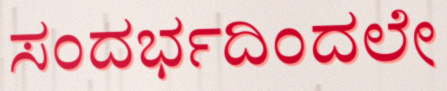
ಸಂದರ್ಭದಿಂದಲೇ